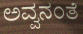
ಅವ್ವನಂತೆ